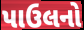
પાઉલનો